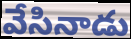
వేసినాడు